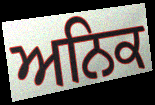
ਅਨਿਕ